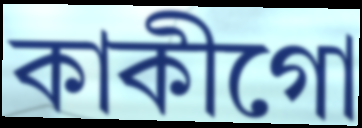
কাকীগো